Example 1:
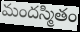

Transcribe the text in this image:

మందస్మితం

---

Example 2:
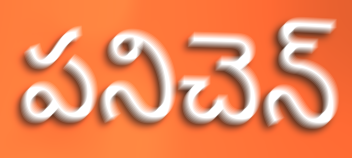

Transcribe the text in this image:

పనిచెన్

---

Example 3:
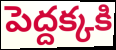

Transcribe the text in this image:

పెద్దక్కకి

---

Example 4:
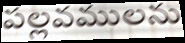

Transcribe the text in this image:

పల్లవములను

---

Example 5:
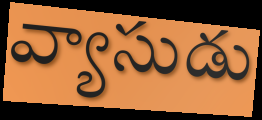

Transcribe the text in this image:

వ్యాసుడు